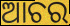
ଆଚର